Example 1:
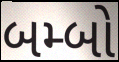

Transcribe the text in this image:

બમ્બો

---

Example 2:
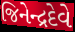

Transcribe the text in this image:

જિનેન્દ્રદેવે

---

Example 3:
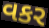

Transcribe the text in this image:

વકર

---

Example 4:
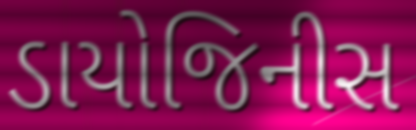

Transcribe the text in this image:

ડાયોજિનીસ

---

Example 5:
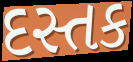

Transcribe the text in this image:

દસ્તક